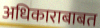
अधिकाराबाबत